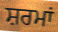
ਸ਼ਰਮਾਂ